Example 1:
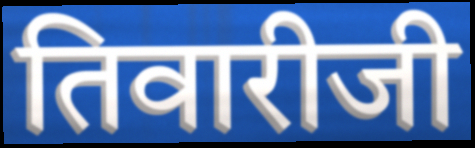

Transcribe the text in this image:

तिवारीजी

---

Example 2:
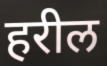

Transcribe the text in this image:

हरील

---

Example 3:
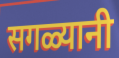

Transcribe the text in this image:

सगळ्यानी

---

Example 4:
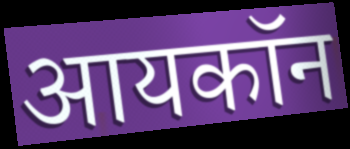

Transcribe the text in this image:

आयकॉन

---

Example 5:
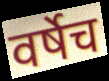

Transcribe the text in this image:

वर्षेच